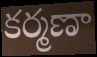
కర్మణా